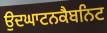
ਉਦਘਾਟਨਕੈਬਨਿਟ